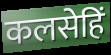
कलसेहिं